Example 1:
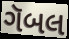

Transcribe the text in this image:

ગૅબલ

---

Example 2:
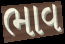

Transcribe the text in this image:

ભાવ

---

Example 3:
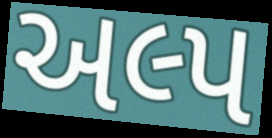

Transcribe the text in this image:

અલ્પ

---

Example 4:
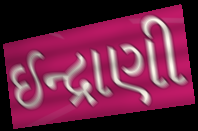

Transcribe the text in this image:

ઈન્દ્રાણી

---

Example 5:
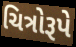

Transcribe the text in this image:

ચિત્રોરૂપે